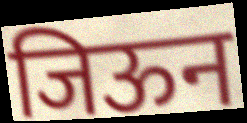
जिऊन